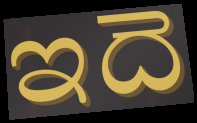
ఇదె